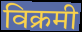
विक्रमी